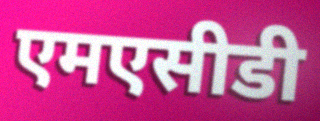
एमएसीडी